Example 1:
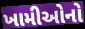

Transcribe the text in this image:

ખામીઓનો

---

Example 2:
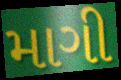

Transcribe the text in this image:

માગી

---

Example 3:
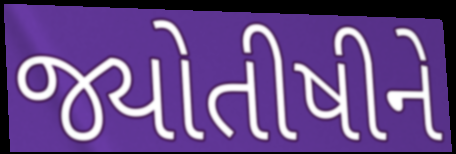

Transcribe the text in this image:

જ્યોતીષીને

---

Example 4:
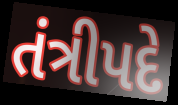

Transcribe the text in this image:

તંત્રીપદે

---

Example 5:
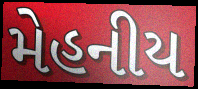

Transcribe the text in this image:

મેહનીય